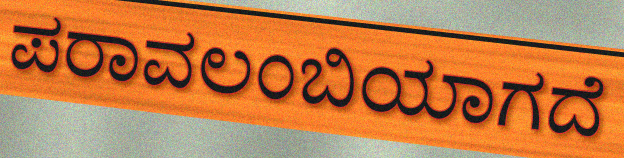
ಪರಾವಲಂಬಿಯಾಗದೆ